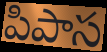
పిపాస